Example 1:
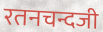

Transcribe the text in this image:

रतनचन्दजी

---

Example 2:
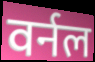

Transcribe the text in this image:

वर्नल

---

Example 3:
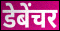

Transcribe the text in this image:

डेबेंचर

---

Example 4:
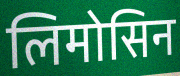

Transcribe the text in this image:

लिमोसिन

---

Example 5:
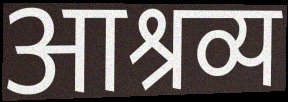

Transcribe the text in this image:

आश्रव्य